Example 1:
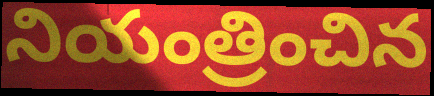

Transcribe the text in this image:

నియంత్రించిన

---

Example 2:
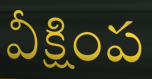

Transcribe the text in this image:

వీక్షింప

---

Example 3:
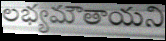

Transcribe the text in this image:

లభ్యమౌతాయని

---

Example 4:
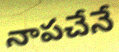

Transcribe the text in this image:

నాపచేనే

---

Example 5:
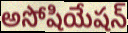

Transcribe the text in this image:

అసోషియేషన్